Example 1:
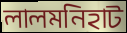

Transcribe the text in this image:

লালমনিহাট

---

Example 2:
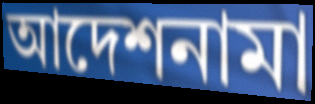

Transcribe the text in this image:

আদেশনামা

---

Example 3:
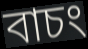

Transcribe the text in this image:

বাচং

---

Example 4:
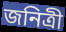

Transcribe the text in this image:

জনিত্রী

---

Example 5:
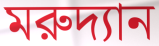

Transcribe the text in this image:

মরুদ্যান